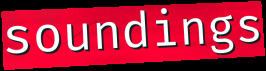
soundings